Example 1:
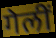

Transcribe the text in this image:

गेलीं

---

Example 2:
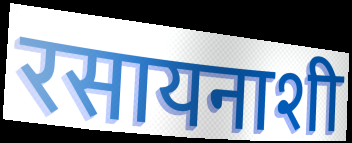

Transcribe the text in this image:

रसायनाशी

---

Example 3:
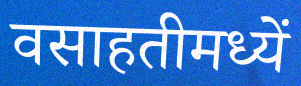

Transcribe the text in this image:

वसाहतीमध्यें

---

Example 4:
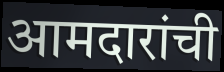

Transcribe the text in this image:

आमदारांची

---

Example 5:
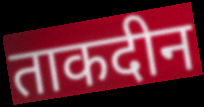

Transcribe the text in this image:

ताकदीन